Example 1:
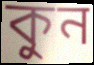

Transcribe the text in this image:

কুন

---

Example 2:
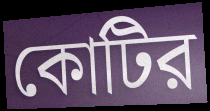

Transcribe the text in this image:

কোটির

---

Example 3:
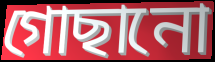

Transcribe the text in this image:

গোছানো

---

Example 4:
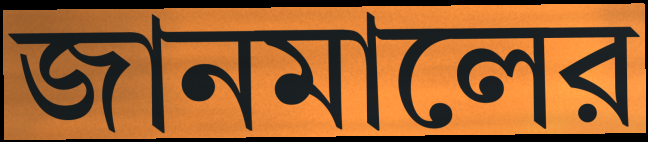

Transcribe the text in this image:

জানমালের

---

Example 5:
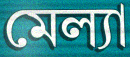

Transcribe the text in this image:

মেল্যা